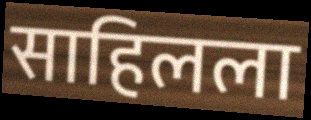
साहिलला